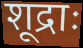
शूद्राः